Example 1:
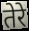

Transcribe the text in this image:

तेरे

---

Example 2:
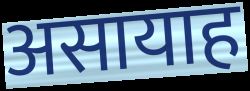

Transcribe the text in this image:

असायाह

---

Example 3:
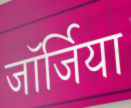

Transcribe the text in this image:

जॉर्जिया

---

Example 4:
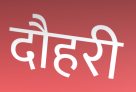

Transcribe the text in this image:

दौहरी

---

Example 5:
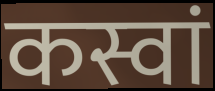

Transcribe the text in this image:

कस्‍वां